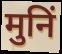
मुनिं